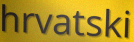
hrvatski